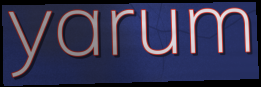
yarum